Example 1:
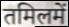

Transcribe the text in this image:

तमिलमें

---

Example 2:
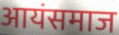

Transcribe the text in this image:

आयंसमाज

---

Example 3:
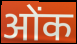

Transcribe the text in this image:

ओंक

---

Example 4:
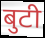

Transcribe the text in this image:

बुटी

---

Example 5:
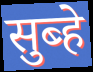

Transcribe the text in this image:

सुब्हे